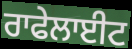
ਰਾਫੇਲਾਈਟ